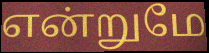
என்றுமே